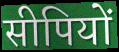
सीपियों